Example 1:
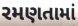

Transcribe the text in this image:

રમણતામાં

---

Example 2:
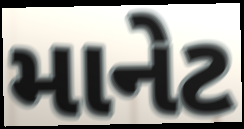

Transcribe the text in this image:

માનેટ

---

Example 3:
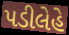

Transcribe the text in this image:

પડીલેહે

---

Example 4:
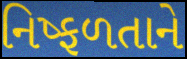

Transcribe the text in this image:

નિષ્ફળતાને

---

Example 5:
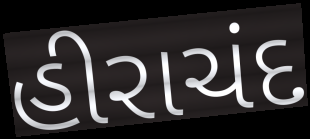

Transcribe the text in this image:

હીરાચંદ